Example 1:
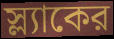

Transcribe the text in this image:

স্ল্যাকের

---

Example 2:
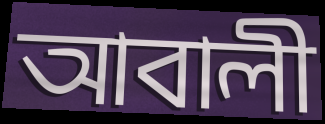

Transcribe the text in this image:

আবালী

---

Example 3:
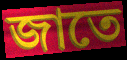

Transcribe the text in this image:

জাতে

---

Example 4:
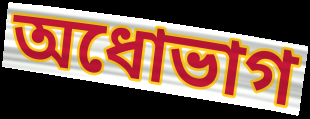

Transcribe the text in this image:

অধোভাগ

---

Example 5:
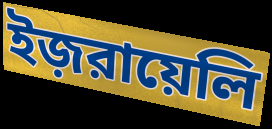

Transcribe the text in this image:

ইজ়রায়েলি